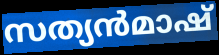
സത്യൻമാഷ്